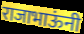
राजाभाऊंनी